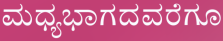
ಮಧ್ಯಭಾಗದವರೆಗೂ